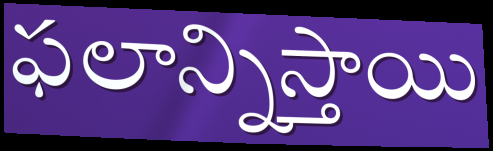
ఫలాన్నిస్తాయి